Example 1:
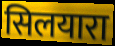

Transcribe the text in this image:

सिलयारा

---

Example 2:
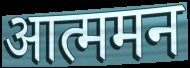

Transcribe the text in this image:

आत्ममन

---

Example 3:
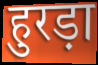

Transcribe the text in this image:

हुरड़ा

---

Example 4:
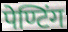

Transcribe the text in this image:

पेण्टिंग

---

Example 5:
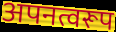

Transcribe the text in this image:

अपनत्वरूप